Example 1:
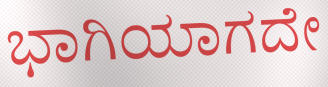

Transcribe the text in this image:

ಭಾಗಿಯಾಗದೇ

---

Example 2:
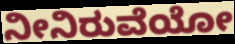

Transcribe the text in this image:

ನೀನಿರುವೆಯೋ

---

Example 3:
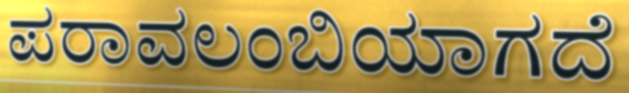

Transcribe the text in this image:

ಪರಾವಲಂಬಿಯಾಗದೆ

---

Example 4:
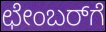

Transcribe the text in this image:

ಛೇಂಬರ್‌ಗೆ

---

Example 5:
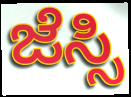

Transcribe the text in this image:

ಜೆಸ್ಸಿ